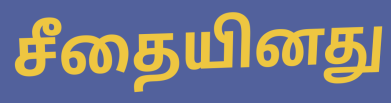
சீதையினது